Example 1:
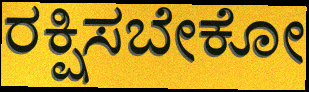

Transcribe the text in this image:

ರಕ್ಷಿಸಬೇಕೋ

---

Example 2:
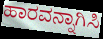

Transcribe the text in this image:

ಹಾರವನ್ನಾಗಿಸಿ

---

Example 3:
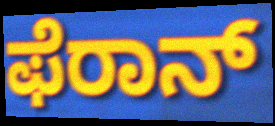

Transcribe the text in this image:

ಫೆರಾನ್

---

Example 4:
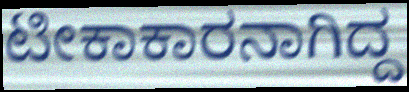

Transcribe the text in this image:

ಟೀಕಾಕಾರನಾಗಿದ್ದ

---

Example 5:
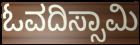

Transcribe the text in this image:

ಓವದಿಸ್ಸಾಮಿ